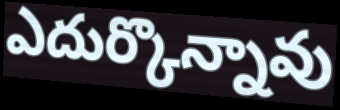
ఎదుర్కొన్నావు